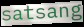
satsang